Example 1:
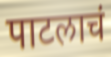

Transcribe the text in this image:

पाटलाचं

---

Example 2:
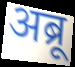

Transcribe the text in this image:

अब्रू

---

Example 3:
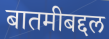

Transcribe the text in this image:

बातमीबद्दल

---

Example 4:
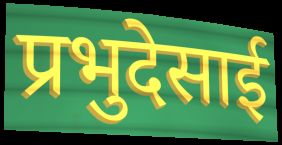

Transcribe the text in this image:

प्रभुदेसाई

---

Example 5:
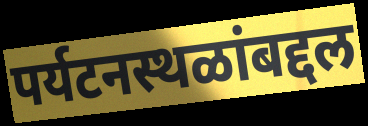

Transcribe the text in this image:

पर्यटनस्थळांबद्दल